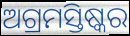
ଅଗ୍ରମସ୍ତିଷ୍କର